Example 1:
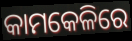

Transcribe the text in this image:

କାମକେଳିରେ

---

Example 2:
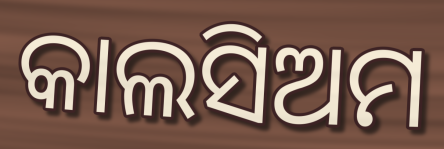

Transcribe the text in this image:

କାଲସିଅମ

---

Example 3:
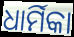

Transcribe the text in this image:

ଧାର୍ମିକା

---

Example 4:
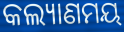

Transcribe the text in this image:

କଲ୍ୟାଣମୟ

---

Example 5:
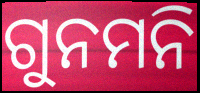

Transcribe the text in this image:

ଗୁନମନି